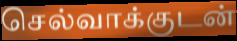
செல்வாக்குடன்